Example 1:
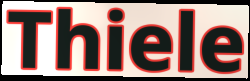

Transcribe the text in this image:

Thiele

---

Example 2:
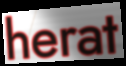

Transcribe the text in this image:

herat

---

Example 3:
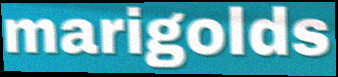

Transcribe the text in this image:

marigolds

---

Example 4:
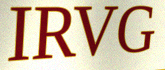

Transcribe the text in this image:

IRVG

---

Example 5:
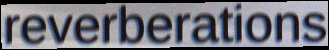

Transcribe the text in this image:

reverberations